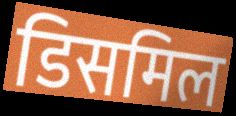
डिसमिल